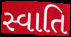
સ્વાતિ